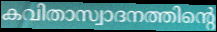
കവിതാസ്വാദനത്തിന്റെ